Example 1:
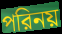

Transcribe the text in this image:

পরিনয়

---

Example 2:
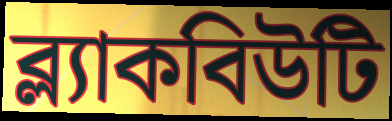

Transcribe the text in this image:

ব্ল্যাকবিউটি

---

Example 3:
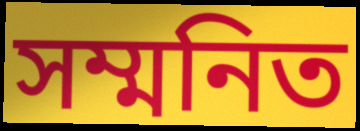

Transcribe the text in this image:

সম্মনিত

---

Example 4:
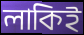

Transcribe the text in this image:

লাকিই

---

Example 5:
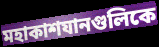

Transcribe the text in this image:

মহাকাশযানগুলিকে